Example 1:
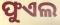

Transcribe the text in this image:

ଫୁଏଲ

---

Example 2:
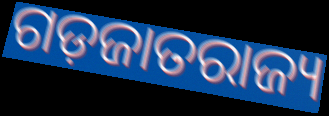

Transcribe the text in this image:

ଗଡ଼ଜାତରାଜ୍ୟ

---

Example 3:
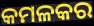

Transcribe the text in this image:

କମଳକର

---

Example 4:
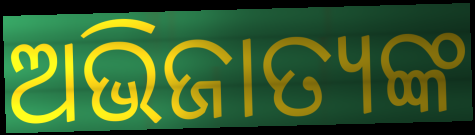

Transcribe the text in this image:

ଅଭିଜାତ୍ୟଙ୍କ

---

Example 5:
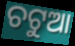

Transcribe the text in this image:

ଚଟୁଆ